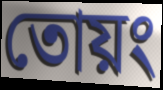
তোয়ং